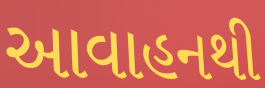
આવાહનથી